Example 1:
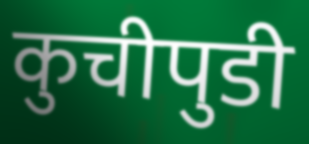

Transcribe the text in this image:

कुचीपुडी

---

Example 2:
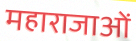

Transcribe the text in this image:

महाराजाओं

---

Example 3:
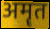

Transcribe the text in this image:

अमॄत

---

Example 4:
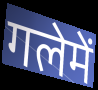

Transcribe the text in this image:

गलेमें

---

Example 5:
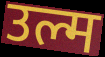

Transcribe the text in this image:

उल्म